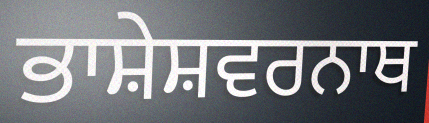
ਭਾਸ਼ੇਸ਼ਵਰਨਾਥ